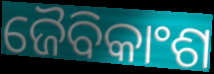
ଜୈବିକାଂଶ